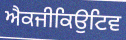
ਐਕਜੀਕਿਉਟਿਵ